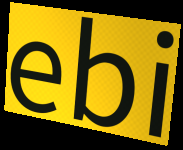
ebi